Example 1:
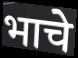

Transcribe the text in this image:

भाचे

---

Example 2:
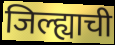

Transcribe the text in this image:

जिल्ह्याची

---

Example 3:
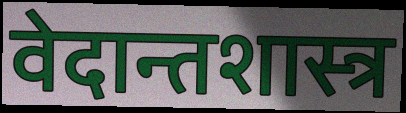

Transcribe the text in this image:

वेदान्तशास्त्र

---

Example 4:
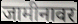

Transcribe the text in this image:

जामीनावर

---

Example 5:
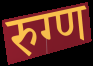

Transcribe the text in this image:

रुग्ण